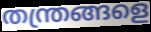
തന്ത്രങ്ങളെ